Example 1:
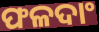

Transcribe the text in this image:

ଫଳଦାଂ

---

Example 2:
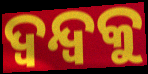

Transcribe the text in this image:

ଦ୍ଵନ୍ଦ୍ଵକୁ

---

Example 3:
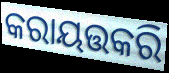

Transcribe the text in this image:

କରାୟତ୍ତକରି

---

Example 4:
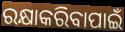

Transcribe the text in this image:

ରକ୍ଷାକରିବାପାଇଁ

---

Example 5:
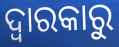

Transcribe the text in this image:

ଦ୍ଵାରକାରୁ